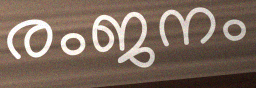
രംജനം